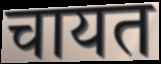
चायत